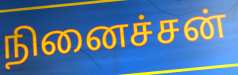
நினைச்சன்